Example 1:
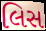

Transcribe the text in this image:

લિસ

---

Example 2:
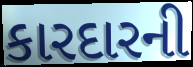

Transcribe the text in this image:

કારદારની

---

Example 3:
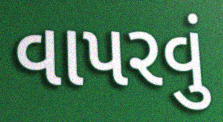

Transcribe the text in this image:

વાપરવું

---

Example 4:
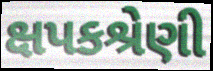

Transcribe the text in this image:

ક્ષપકશ્રેણી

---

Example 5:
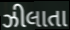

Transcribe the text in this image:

ઝીલાતા